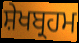
ਸ਼ੇਖਬ੍ਰਹਮ